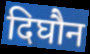
दिघौन